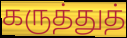
கருத்துத்